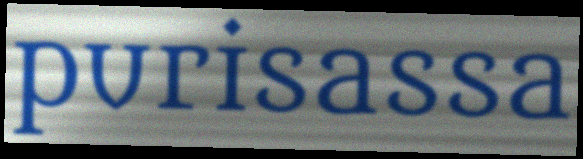
purisassa